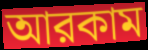
আরকাম